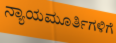
ನ್ಯಾಯಮೂರ್ತಿಗಳಿಗೆ